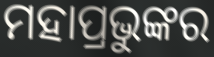
ମହାପ୍ରଭୁଙ୍କର